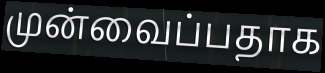
முன்வைப்பதாக